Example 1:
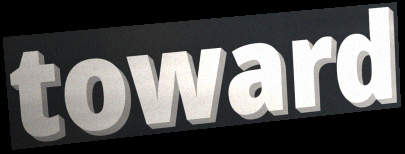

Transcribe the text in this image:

toward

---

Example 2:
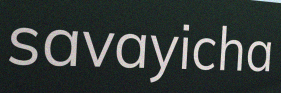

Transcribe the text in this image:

savayicha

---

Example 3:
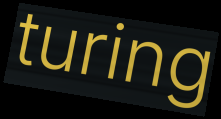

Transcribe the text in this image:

turing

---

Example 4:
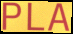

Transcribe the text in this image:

PLA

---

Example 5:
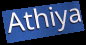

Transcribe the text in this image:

Athiya